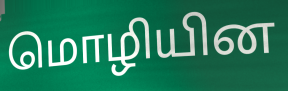
மொழியின